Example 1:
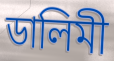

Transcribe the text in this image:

ডালিমী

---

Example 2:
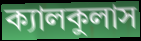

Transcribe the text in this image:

ক্যালকুলাস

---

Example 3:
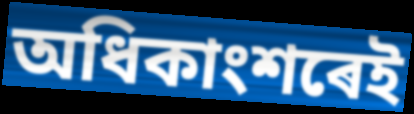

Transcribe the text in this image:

অধিকাংশৰেই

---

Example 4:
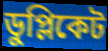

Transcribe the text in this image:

ডুপ্লিকেট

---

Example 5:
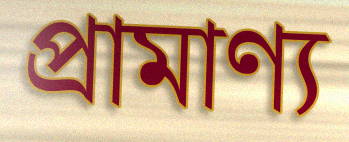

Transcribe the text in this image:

প্ৰামাণ্য